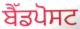
ਬੈੱਡਪੋਸਟ